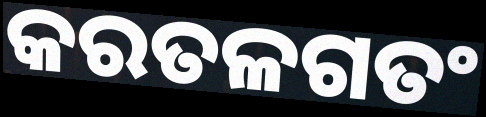
କରତଳଗତଂ